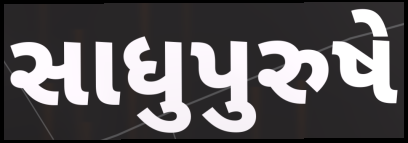
સાધુપુરુષે